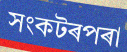
সংকটৰপৰা